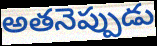
అతనెప్పుడు